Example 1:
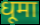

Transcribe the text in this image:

धूमा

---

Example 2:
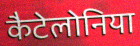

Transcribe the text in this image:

कैटेलोनिया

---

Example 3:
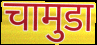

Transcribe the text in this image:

चामुडा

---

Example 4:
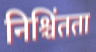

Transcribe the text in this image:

निश्चिंतता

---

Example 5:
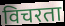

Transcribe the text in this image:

विचरता